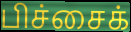
பிச்சைக்